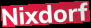
Nixdorf